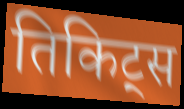
तिकिट्स